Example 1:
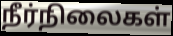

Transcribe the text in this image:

நீர்நிலைகள்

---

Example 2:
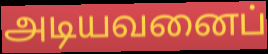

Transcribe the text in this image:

அடியவனைப்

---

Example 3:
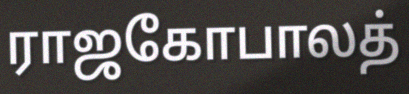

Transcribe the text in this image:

ராஜகோபாலத்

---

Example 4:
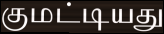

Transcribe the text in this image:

குமட்டியது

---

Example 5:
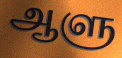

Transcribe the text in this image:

ஆளு